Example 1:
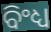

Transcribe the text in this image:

ବିଂଧ୍ୟ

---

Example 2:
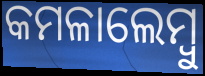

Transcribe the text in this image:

କମଳାଲେମ୍ୱୁ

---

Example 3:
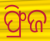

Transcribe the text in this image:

ଫ୍ରିଜ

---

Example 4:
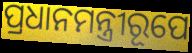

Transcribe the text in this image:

ପ୍ରଧାନମନ୍ତ୍ରୀରୂପେ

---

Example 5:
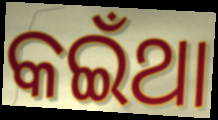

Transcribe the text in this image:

କଇଁଥା